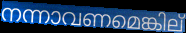
നന്നാവണമെങ്കില്